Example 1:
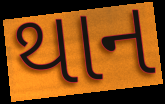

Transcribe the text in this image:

થાન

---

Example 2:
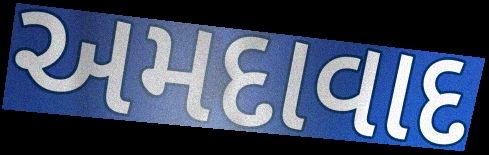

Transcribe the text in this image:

અમદાવાદ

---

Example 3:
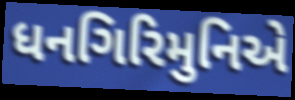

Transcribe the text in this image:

ધનગિરિમુનિએ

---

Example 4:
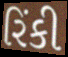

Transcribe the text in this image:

રિંકી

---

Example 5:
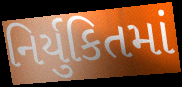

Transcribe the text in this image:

નિર્યુકિતમાં